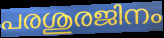
പരശുരജിനം